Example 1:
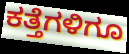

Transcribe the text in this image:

ಕತ್ತೆಗಳಿಗೂ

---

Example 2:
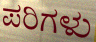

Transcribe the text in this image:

ಪರಿಗಳು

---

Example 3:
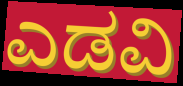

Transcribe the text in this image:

ಎಡವಿ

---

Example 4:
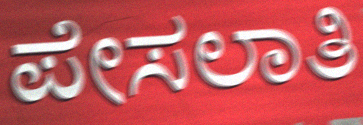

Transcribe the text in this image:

ಪೇಸಲಾತಿ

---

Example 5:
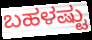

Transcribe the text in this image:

ಬಹಳಷ್ಟು